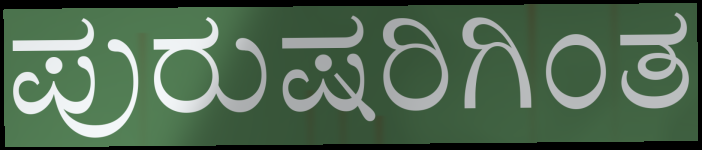
ಪುರುಷರಿಗಿಂತ